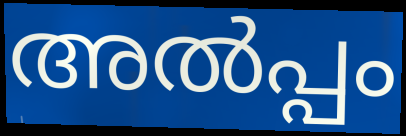
അൽപ്പം